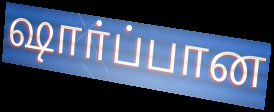
ஷார்ப்பான